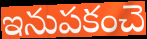
ఇనుపకంచె